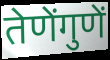
तेणेंगुणें